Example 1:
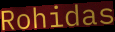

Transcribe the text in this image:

Rohidas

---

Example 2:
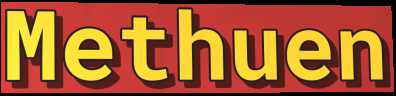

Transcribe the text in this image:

Methuen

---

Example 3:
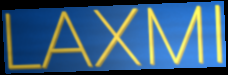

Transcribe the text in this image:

LAXMI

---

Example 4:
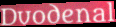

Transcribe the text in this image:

Duodenal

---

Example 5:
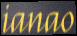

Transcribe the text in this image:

ianao